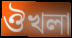
ঔখলা